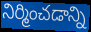
నిర్మించడాన్ని